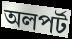
অলপর্ট